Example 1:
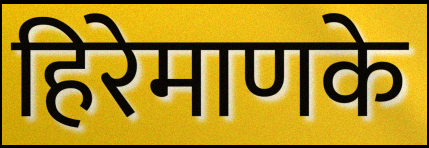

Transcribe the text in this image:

हिरेमाणके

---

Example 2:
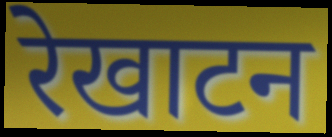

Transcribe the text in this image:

रेखाटन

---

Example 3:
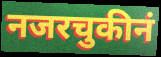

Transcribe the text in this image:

नजरचुकीनं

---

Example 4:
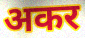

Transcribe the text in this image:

अकर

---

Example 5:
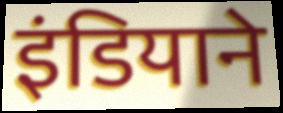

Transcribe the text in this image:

इंडियाने